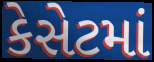
કેસેટમાં